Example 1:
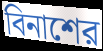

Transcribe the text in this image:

বিনাশের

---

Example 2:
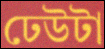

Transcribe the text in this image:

ঢেউটা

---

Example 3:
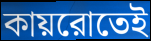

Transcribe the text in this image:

কায়রোতেই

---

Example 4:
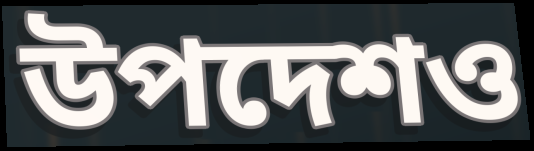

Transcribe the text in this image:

উপদেশও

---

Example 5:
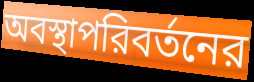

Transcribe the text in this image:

অবস্থাপরিবর্তনের